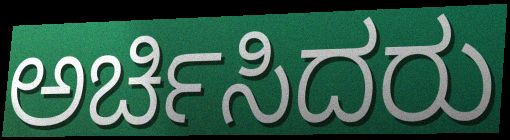
ಅರ್ಚಿಸಿದರು